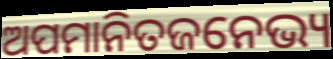
ଅପମାନିତଜନେଭ୍ୟ